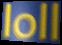
loll